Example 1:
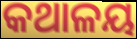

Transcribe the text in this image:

କଥାଳୟ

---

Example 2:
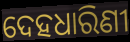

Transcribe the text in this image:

ଦେହଧାରିଣୀ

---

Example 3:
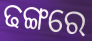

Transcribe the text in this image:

ଢଙ୍ଗରେ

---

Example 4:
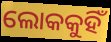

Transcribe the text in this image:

ଲୋକକୁହିଁ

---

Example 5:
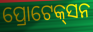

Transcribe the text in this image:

ପ୍ରୋଟେକ୍‌ସନ